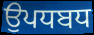
ਉਪਧਬਧ